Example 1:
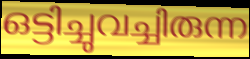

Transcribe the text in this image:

ഒട്ടിച്ചുവച്ചിരുന്ന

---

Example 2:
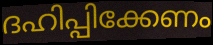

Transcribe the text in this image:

ദഹിപ്പിക്കേണം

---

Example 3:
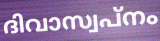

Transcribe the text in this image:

ദിവാസ്വപ്നം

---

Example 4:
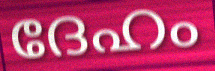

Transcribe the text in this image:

ദേഹം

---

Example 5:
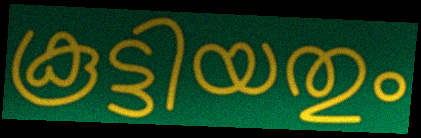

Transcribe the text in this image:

കൂട്ടിയതും